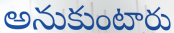
అనుకుంటారు